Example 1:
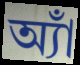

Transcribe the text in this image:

অ্যাঁ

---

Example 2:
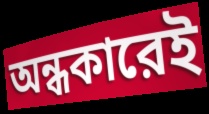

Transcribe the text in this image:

অন্ধকারেই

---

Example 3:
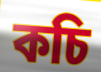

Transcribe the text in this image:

কচি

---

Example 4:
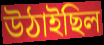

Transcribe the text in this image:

উঠাইছিল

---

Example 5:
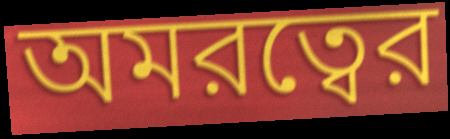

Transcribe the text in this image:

অমরত্বের